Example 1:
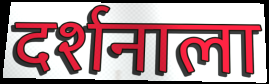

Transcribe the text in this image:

दर्शनाला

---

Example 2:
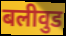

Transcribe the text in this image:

बलीवुड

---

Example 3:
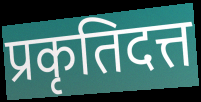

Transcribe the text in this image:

प्रकृतिदत्त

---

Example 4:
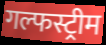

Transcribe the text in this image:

गल्फस्ट्रीम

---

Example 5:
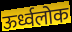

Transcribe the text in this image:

ऊर्ध्वलोक